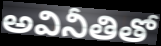
అవినీతితో